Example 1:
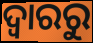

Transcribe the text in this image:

ଦ୍ଵାରରୁ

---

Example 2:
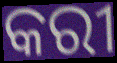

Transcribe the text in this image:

କରୀ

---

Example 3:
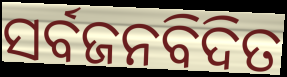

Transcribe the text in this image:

ସର୍ବଜନବିଦିତ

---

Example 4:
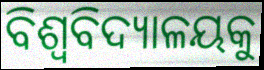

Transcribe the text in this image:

ବିଶ୍ବବିଦ୍ୟାଳୟକୁ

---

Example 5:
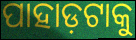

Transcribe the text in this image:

ପାହାଡ଼ଟାକୁ